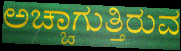
ಅಚ್ಚಾಗುತ್ತಿರುವ